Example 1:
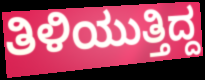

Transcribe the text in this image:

ತಿಳಿಯುತ್ತಿದ್ದ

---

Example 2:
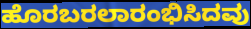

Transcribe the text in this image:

ಹೊರಬರಲಾರಂಭಿಸಿದವು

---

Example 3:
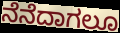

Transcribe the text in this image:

ನೆನೆದಾಗಲೂ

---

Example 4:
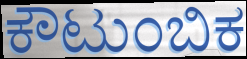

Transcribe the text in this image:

ಕೌಟುಂಬಿಕ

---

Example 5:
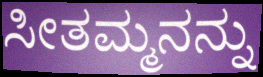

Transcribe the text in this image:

ಸೀತಮ್ಮನನ್ನು